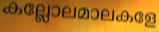
കല്ലോലമാലകളേ